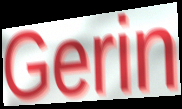
Gerin